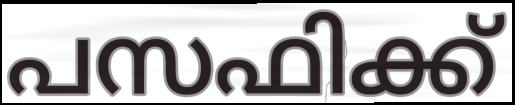
പസഫിക്ക്